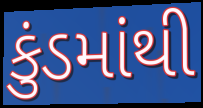
કુંડમાંથી